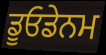
ਡੂਓਡੇਨਮ